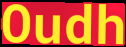
Oudh